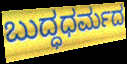
ಬುದ್ಧಧರ್ಮದ